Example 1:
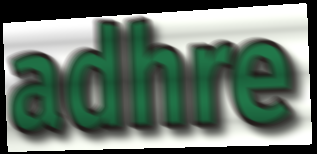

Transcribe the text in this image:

adhre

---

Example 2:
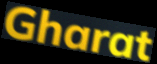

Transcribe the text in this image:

Gharat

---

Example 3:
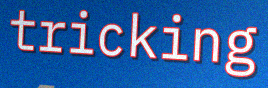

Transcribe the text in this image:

tricking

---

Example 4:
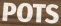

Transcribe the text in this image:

POTS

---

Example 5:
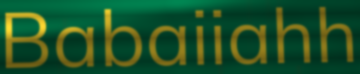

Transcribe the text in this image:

Babaiiahh